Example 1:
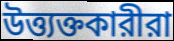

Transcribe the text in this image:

উত্ত্যক্তকারীরা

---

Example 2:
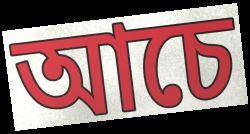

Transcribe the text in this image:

আচে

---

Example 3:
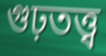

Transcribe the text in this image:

গুঢ়তত্ত্ব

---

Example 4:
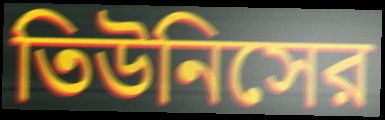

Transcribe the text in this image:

তিউনিসের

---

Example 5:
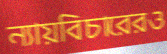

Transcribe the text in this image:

ন্যায়বিচারেরও